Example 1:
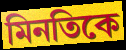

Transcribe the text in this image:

মিনতিকে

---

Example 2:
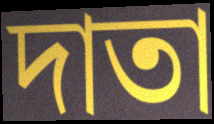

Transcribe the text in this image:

দাতা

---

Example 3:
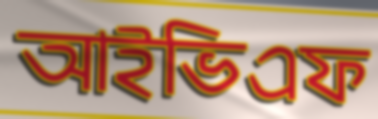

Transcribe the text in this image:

আইভিএফ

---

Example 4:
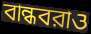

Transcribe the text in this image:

বান্ধবরাও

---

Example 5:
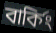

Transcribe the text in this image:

বার্কিং